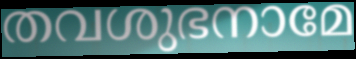
തവശുഭനാമേ